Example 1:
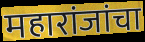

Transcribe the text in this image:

महारांजांचा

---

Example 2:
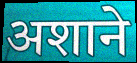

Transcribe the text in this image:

अशाने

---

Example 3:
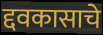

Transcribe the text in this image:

द्दवकासाचे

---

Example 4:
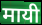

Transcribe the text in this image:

मायी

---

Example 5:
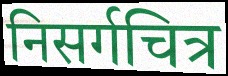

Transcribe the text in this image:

निसर्गचित्र